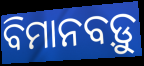
ବିମାନବଡ଼ୁ